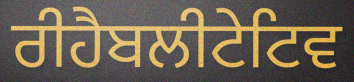
ਰੀਹੈਬਲੀਟੇਟਿਵ